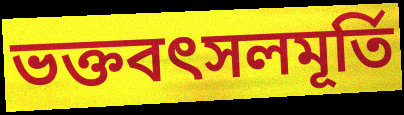
ভক্তবৎসলমূর্তি